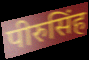
पीरुसिंह